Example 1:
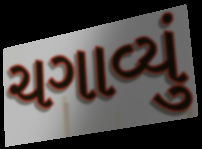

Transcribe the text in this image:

ચગાવ્યું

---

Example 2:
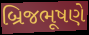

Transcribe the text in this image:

બ્રિજભૂષણે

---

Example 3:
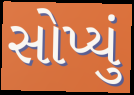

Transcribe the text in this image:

સોપ્યું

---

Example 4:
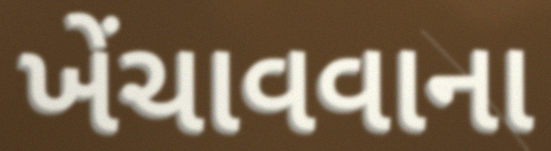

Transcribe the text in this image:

ખેંચાવવાના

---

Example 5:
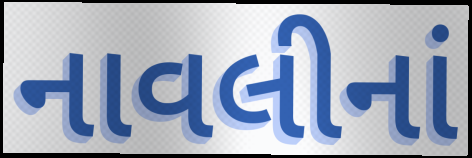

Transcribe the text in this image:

નાવલીનાં